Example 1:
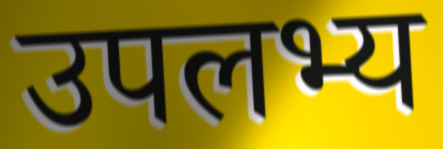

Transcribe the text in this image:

उपलभ्य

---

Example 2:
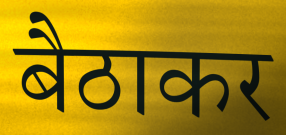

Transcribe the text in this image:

बैठाकर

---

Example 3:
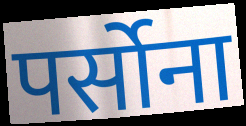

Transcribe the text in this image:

पर्सोना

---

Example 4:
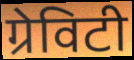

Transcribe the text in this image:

ग्रेविटी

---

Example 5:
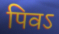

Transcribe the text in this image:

पिवऽ